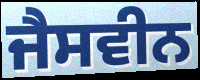
ਜੈਸਵੀਨ